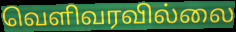
வெளிவரவில்லை